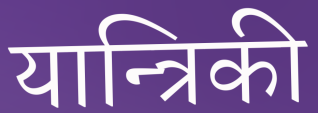
यान्त्रिकी